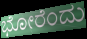
ಭೋರೆಂದು